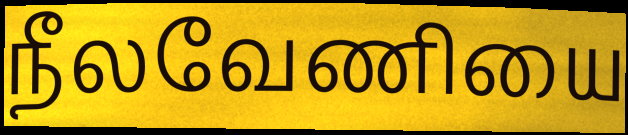
நீலவேணியை